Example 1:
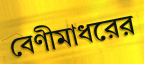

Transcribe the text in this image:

বেণীমাধরের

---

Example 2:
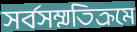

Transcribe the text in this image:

সর্বসম্মতিক্রমে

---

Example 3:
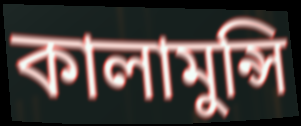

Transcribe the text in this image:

কালামুন্সি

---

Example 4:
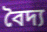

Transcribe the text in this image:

বৈদ্য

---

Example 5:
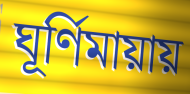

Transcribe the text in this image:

ঘূর্ণিমায়ায়